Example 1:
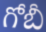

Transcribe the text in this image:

గోబీ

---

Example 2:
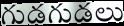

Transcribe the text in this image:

గుడగుడలు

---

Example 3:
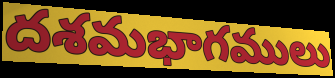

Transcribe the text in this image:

దశమభాగములు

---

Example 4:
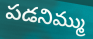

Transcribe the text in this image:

పడనిమ్ము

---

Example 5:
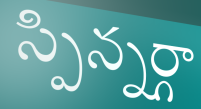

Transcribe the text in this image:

స్పిన్నర్గా